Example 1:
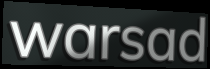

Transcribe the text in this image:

warsad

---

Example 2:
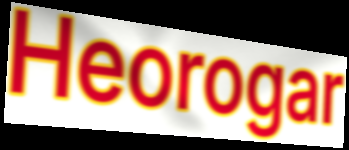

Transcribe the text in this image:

Heorogar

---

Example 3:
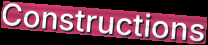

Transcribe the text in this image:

Constructions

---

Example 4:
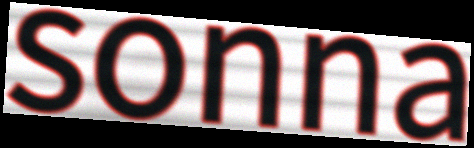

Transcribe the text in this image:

sonna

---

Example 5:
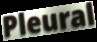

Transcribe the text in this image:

Pleural